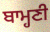
ਬਾਮ੍ਹਣੀ